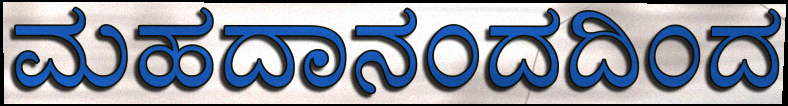
ಮಹದಾನಂದದಿಂದ